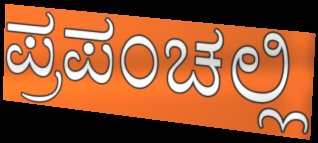
ಪ್ರಪಂಚಲ್ಲಿ